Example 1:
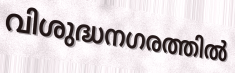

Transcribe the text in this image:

വിശുദ്ധനഗരത്തിൽ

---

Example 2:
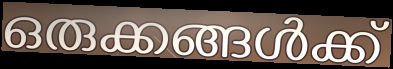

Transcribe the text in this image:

ഒരുക്കങ്ങൾക്ക്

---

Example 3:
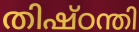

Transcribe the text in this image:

തിഷ്ഠന്തി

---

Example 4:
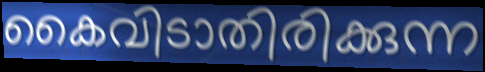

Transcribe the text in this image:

കൈവിടാതിരിക്കുന്ന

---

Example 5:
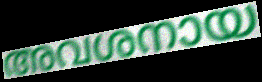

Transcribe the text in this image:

അവശനായ